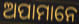
ଅପାମାନେ